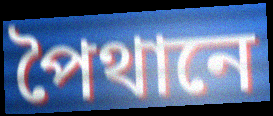
পৈথানে